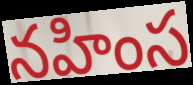
నహింస